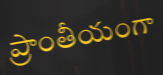
ప్రాంతీయంగా